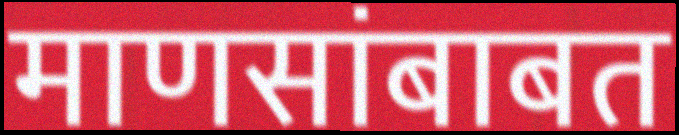
माणसांबाबत